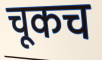
चूकच